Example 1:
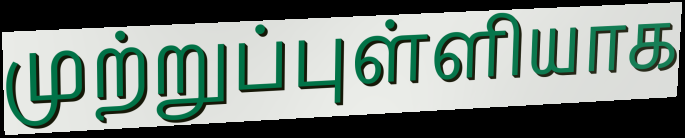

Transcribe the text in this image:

முற்றுப்புள்ளியாக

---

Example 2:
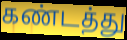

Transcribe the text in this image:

கண்டத்து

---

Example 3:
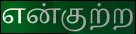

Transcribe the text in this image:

என்குற்ற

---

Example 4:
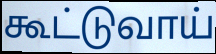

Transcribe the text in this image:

கூட்டுவாய்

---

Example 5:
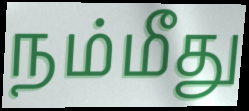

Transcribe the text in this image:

நம்மீது